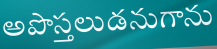
అపొస్తలుడనుగాను